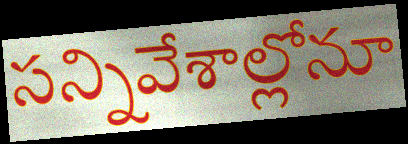
సన్నివేశాల్లోనూ